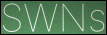
SWNs